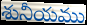
శునీయము